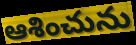
ఆశించును